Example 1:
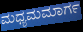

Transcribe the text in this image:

ಮಧ್ಯಮಮಾರ್ಗ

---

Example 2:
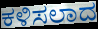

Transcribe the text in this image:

ಕಳಿಸಲಾದ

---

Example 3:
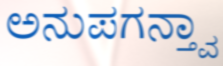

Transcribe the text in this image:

ಅನುಪಗನ್ತ್ವಾ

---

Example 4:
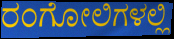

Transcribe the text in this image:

ರಂಗೋಲಿಗಳಲ್ಲಿ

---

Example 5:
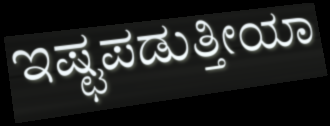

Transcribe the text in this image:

ಇಷ್ಟಪಡುತ್ತೀಯಾ